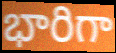
భారిగా